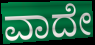
ವಾದೇ